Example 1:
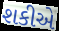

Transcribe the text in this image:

શકીએ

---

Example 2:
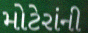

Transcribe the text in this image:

મોટેરાંની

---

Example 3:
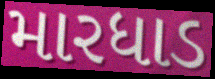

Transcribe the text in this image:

મારધાડ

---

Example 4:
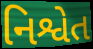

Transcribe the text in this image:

નિશ્વેત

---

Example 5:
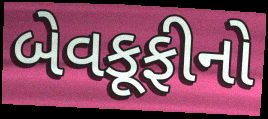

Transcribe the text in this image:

બેવકૂફીનો